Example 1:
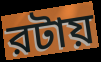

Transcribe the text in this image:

রটায়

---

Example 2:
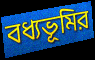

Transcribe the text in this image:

বধ্যভূমির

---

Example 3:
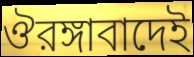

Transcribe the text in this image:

ঔরঙ্গাবাদেই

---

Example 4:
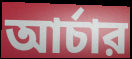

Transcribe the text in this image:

আর্চার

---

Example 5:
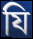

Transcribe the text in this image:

যি